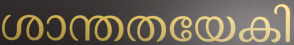
ശാന്തതയേകി